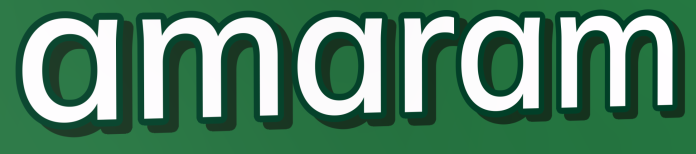
amaram